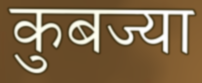
कुबज्या